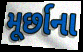
મૂર્છાના